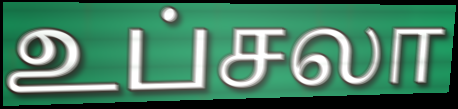
உப்சலா